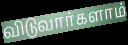
விடுவார்களாம்